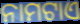
ନାମଟାଏ